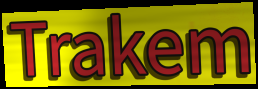
Trakem